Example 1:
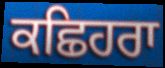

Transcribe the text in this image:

ਕਛਿਹਰਾ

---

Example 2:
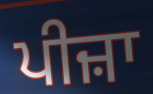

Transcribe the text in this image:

ਪੀਜ਼ਾ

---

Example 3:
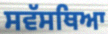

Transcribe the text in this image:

ਸਵੱਸਥਿਆ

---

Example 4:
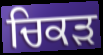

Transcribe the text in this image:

ਚਿਕੜ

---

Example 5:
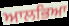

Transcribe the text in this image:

ਆਲਭਿਆ